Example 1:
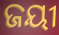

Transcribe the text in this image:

ଜୟୀ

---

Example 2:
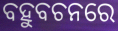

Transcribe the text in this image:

ବହୁବଚନରେ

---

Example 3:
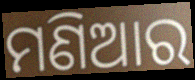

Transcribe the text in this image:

ମଣିଆର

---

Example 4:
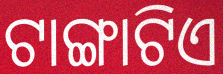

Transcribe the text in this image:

ଟାଙ୍ଗାଟିଏ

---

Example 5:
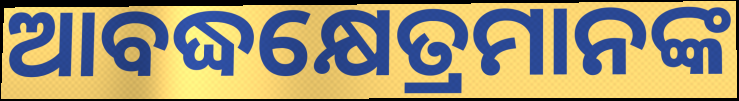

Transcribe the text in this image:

ଆବଦ୍ଧକ୍ଷେତ୍ରମାନଙ୍କ